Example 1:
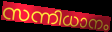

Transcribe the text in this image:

സന്നിധാനം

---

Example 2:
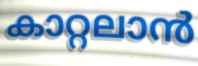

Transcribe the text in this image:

കാറ്റലാൻ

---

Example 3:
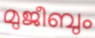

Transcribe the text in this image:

മുജീബും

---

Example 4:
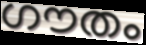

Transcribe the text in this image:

ഗൗതം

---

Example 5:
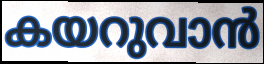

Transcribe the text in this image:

കയറുവാൻ